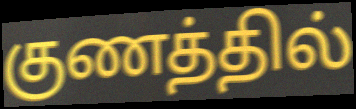
குணத்தில்